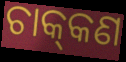
ଚାକ୍‌କଣ